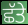
ਛੱਤੇ